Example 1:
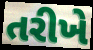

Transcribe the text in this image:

તરીખે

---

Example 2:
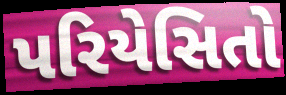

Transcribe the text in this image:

પરિયેસિતો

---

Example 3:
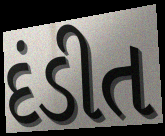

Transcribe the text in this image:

દંડીત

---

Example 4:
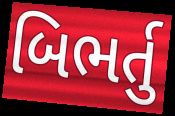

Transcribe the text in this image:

બિભર્તુ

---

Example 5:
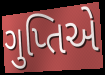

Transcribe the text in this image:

ગુપ્તિએ